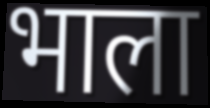
भाला